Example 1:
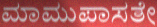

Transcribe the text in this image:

ಮಾಮುಪಾಸತೇ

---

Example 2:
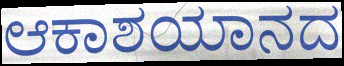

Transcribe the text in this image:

ಆಕಾಶಯಾನದ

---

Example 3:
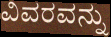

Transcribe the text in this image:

ವಿವರವನ್ನು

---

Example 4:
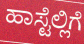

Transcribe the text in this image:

ಹಾಸ್ಟೆಲ್ಲಿಗೆ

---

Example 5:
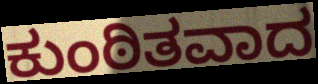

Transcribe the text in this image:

ಕುಂಠಿತವಾದ